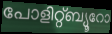
പോളിറ്റ്ബ്യൂറോ